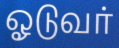
ஓடுவர்